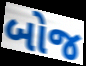
બોજ